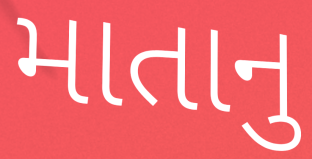
માતાનુ